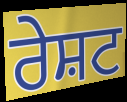
ਰੇਸ਼ਟ